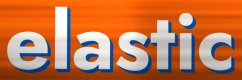
elastic